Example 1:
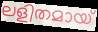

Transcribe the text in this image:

ലളിതമായ്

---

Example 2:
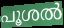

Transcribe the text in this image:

പൂശൽ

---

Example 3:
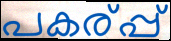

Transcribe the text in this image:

പകര്പ്പ്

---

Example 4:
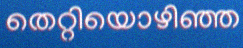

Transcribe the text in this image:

തെറ്റിയൊഴിഞ്ഞ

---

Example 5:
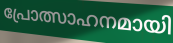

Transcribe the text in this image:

പ്രോത്സാഹനമായി